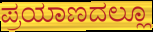
ಪ್ರಯಾಣದಲ್ಲೂ